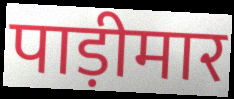
पाड़ीमार